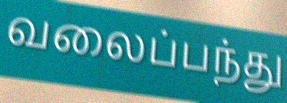
வலைப்பந்து